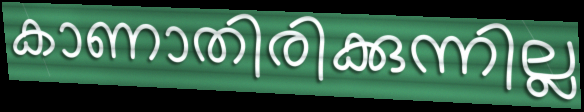
കാണാതിരിക്കുന്നില്ല